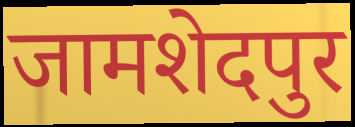
जामशेदपुर